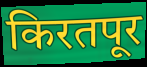
किरतपूर